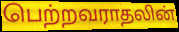
பெற்றவராதலின்